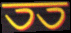
তত